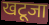
खटूजा